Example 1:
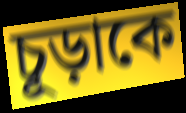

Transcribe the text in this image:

চূড়াকে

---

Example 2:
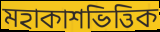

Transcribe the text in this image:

মহাকাশভিত্তিক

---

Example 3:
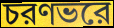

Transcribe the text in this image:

চরণভরে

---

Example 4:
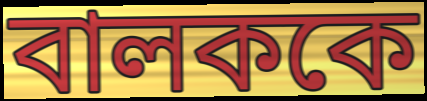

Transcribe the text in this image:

বালককে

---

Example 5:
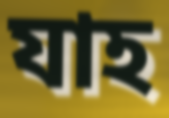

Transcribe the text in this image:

যাহ